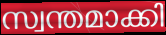
സ്വന്തമാക്കി